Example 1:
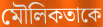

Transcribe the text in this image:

মৌলিকতাকে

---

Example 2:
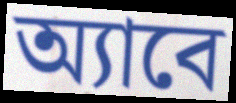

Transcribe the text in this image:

অ্যাবে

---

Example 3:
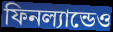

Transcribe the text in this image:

ফিনল্যান্ডেও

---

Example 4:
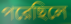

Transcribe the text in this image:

পরেছিলে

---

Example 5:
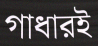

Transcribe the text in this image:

গাধারই